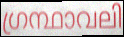
ഗ്രന്ഥാവലി